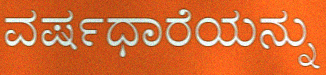
ವರ್ಷಧಾರೆಯನ್ನು